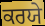
ਕਰਯੇ